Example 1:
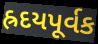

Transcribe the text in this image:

હ્રદયપૂર્વક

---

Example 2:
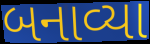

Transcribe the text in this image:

બનાવ્યા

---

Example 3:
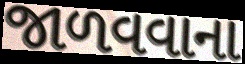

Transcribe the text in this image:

જાળવવાના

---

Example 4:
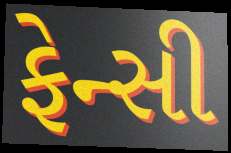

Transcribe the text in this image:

ફેન્સી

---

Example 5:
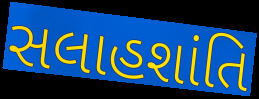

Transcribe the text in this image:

સલાહશાંતિ